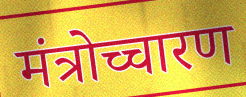
मंत्रोच्चारण